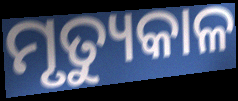
ମୃତ୍ୟୁକାଳ